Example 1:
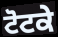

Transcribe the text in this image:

ਟੋਟਕੇ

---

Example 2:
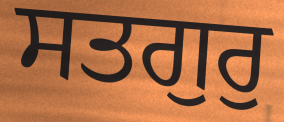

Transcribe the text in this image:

ਸਤਗੁਰੁ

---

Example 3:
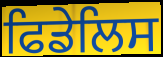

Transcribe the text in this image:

ਫਿਡੇਲਿਸ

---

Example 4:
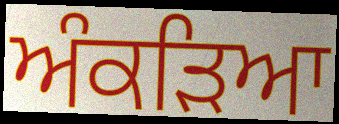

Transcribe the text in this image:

ਅੰਕੜਿਆ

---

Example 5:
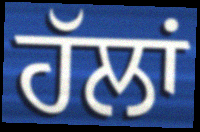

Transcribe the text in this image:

ਹੱਲਾਂ